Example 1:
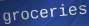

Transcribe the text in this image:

groceries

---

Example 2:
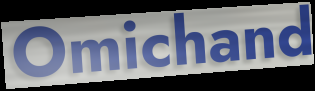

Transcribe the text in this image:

Omichand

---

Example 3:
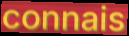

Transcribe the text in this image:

connais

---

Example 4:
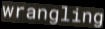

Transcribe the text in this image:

wrangling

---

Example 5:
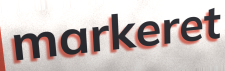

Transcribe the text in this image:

markeret